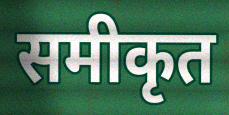
समीकृत